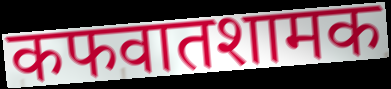
कफवातशामक